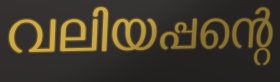
വലിയപ്പന്റെ